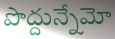
పొద్దున్నేమో